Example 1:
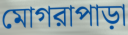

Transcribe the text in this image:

মোগরাপাড়া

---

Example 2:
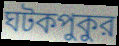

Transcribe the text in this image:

ঘটকপুকুর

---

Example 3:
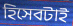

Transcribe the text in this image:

হিসেবটাই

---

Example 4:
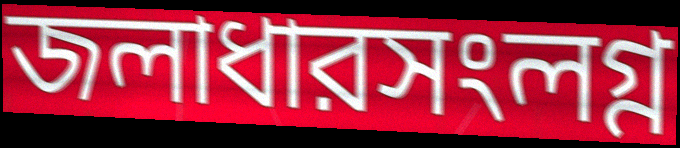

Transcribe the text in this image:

জলাধারসংলগ্ন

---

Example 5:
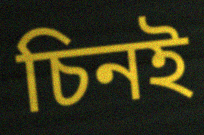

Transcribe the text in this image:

চিনই